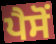
ਪੈਸੋਂ